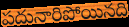
పదునారిపోయినది